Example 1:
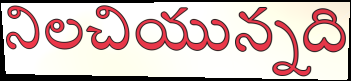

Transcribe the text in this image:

నిలచియున్నది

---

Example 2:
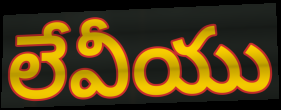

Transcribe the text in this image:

లేవీయు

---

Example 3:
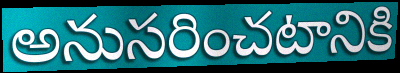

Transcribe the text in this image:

అనుసరించటానికి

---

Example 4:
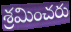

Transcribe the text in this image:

శ్రమించరు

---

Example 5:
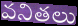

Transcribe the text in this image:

వనితలు